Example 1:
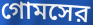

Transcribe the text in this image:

গোমসের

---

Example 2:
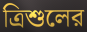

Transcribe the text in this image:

ত্রিশুলের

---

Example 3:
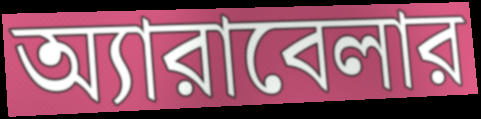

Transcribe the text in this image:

অ্যারাবেলার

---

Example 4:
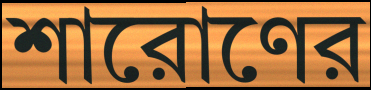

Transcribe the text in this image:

শারোণের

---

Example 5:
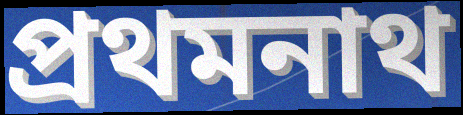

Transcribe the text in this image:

প্রথমনাথ